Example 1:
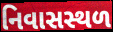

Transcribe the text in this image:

નિવાસસ્થળ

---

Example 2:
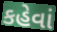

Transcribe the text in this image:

કહેવાં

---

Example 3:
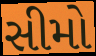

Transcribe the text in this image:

સીમો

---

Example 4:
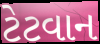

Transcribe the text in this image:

ટેટવાન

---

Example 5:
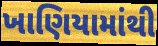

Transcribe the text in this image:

ખાણિયામાંથી